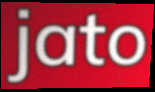
jato